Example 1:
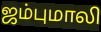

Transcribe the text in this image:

ஜம்புமாலி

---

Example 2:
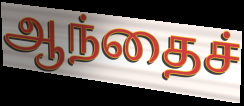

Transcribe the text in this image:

ஆந்தைச்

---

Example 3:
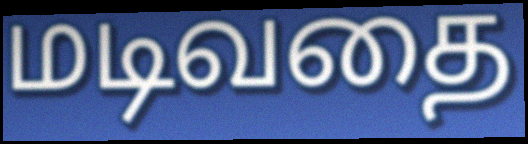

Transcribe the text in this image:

மடிவதை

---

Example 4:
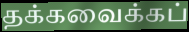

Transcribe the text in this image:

தக்கவைக்கப்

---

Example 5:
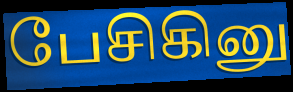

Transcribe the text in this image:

பேசிகினு